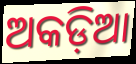
ଅକଡ଼ିଆ